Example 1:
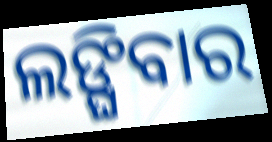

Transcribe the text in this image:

ଲଙ୍ଘିବାର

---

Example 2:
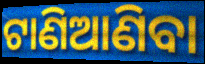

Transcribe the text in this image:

ଟାଣିଆଣିବା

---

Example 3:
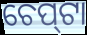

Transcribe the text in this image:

ଚେପ୍‌ଟା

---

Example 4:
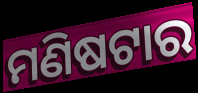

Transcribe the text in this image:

ମଣିଷଟାର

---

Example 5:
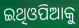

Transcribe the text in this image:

ଇଥିଓପିଆକୁ